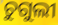
ଚୁଗୁଲୀ